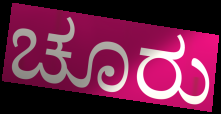
ಚೂರು